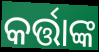
କର୍ତ୍ତାଙ୍କ